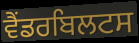
ਵੈਂਡਰਬਿਲਟਸ